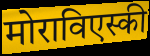
मोराविएस्की